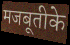
मजबूतीके